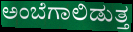
ಅಂಬೆಗಾಲಿಡುತ್ತ